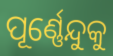
ପୂର୍ଣ୍ଣେନ୍ଦୁକୁ